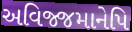
અવિજ્જમાનેપિ